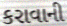
કરાવાની